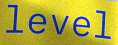
level